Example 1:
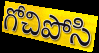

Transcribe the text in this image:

గోచిపోసి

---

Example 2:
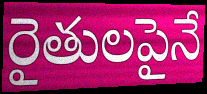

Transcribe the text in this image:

రైతులపైనే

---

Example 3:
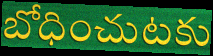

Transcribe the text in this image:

బోధించుటకు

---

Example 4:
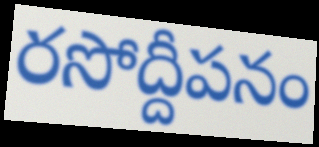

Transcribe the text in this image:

రసోద్దీపనం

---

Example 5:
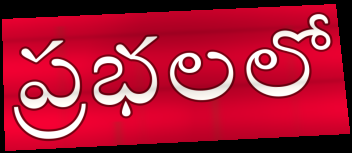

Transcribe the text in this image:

ప్రభలలో